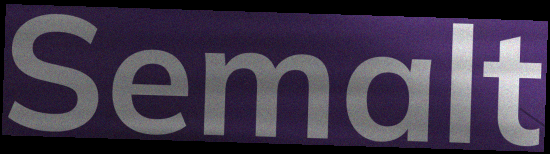
Semalt